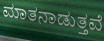
ಮಾತನಾಡುತ್ತವೆ